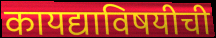
कायद्याविषयीची